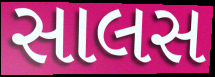
સાલસ